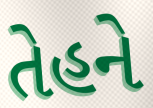
તેહને